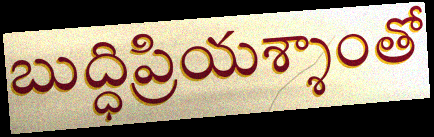
బుద్ధిప్రియశ్శాంతో